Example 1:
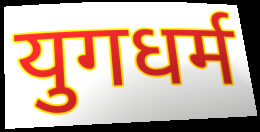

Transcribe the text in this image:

युगधर्म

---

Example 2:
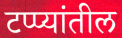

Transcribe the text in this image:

टप्प्यांतील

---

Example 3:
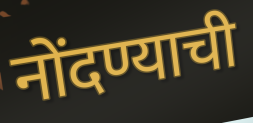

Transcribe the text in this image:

नोंदण्याची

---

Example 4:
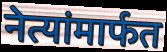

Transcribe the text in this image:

नेत्यांमार्फत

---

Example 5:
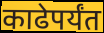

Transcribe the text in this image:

काढेपर्यंत